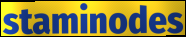
staminodes